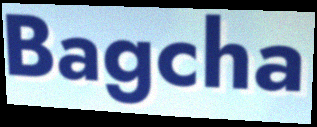
Bagcha